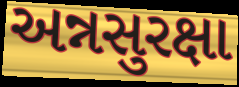
અન્નસુરક્ષા